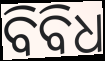
ବିବିଧ